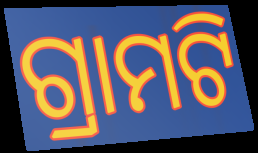
ଗ୍ରାମଟି